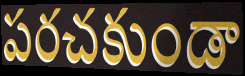
పరచకుండా